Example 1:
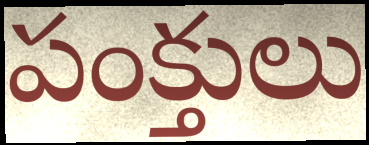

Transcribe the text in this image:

పంక్తులు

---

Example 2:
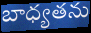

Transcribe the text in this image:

బాధ్యతను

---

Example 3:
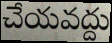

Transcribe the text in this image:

చేయవద్దు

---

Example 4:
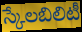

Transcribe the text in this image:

స్కేలబిలిటీ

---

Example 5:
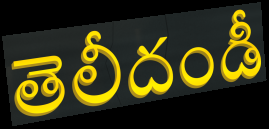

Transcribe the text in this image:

తెలీదండీ